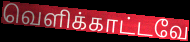
வெளிக்காட்டவே